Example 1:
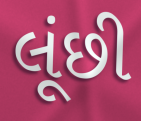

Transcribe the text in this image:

લૂંછી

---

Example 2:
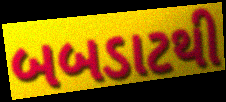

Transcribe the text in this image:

બબડાટથી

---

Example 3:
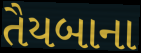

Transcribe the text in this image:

તૈયબાના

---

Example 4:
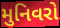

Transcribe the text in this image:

મુનિવરો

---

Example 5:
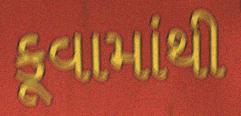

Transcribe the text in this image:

કૂવામાંથી